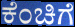
ಕೆಂಚಿಗೆ